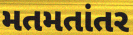
મતમતાંતર